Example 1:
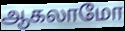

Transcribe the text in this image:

ஆகலாமோ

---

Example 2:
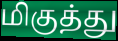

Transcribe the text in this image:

மிகுத்து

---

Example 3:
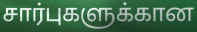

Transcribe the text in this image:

சார்புகளுக்கான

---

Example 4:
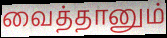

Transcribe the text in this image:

வைத்தானும்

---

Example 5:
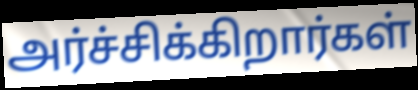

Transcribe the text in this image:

அர்ச்சிக்கிறார்கள்